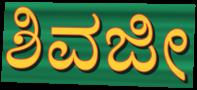
ಶಿವಜೀ